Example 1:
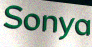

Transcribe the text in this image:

Sonya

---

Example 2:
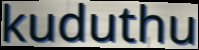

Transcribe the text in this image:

kuduthu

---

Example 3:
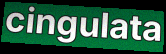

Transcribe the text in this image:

cingulata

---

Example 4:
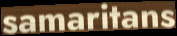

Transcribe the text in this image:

samaritans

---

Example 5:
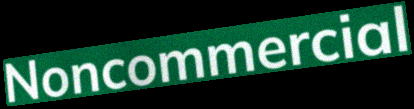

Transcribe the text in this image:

Noncommercial